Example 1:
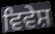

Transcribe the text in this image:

ਵਿਵੇਸ਼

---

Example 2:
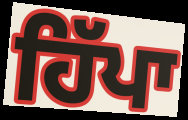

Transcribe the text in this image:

ਹਿੱਪਾ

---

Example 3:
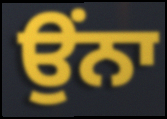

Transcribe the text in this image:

ਉੰਨਾ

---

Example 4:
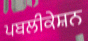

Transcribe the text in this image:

ਪਬਲੀਕੇਸ਼ਨ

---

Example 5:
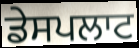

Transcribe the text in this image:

ਡੇਸਪਲਾਟ